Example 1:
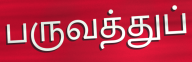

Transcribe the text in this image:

பருவத்துப்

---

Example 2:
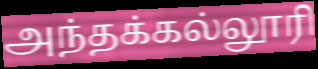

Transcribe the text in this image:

அந்தக்கல்லூரி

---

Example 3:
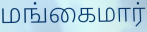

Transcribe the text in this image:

மங்கைமார்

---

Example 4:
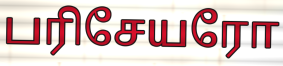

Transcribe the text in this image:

பரிசேயரோ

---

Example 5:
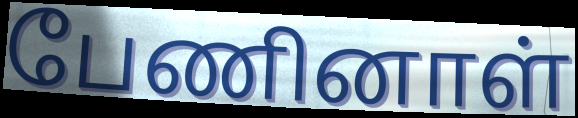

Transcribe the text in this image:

பேணினாள்